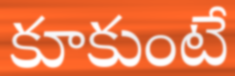
కూకుంటే